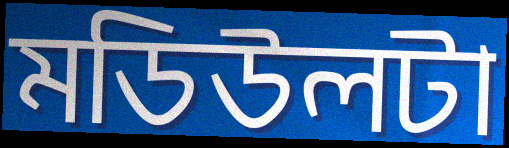
মডিউলটা